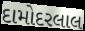
દામોદરલાલ